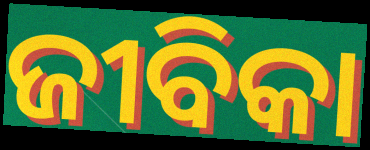
ଜୀବିକା